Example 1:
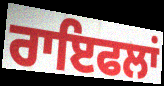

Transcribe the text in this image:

ਰਾਇਫਲਾਂ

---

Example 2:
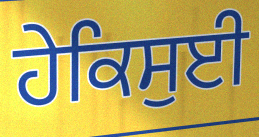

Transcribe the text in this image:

ਹੇਕਿਸੁਈ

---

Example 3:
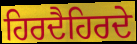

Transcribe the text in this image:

ਹਿਰਦੈਹਿਰਦੇ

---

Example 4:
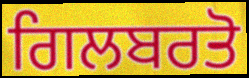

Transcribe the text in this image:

ਗਿਲਬਰਤੋ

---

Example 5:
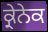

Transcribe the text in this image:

ਕ੍ਰੇਨੇਕ